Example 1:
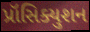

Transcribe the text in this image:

પ્રૉસિક્યુશન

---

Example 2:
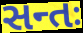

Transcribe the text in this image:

સન્તઃ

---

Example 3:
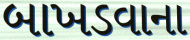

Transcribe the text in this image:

બાખડવાના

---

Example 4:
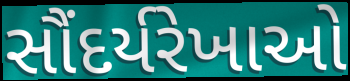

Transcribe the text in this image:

સૌંદર્યરેખાઓ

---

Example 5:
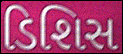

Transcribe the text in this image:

ડિશિસ